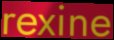
rexine